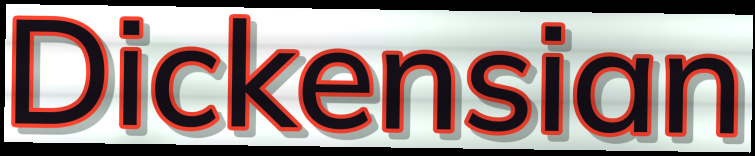
Dickensian